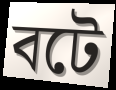
বটে